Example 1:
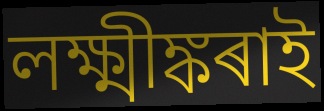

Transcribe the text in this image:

লক্ষ্মীঙ্কৰাই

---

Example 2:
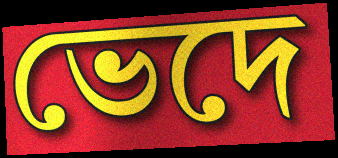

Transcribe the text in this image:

ভেদে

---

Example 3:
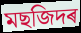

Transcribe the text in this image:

মছজিদৰ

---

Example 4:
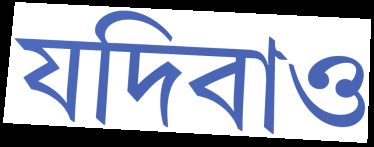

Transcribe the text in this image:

যদিবাও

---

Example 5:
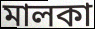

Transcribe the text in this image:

মালকা